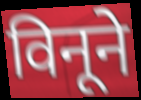
विनूने